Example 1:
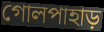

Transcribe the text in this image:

গোলপাহাড়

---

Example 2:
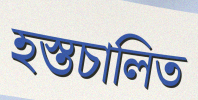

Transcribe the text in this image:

হস্তচালিত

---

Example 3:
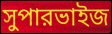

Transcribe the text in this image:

সুপারভাইজ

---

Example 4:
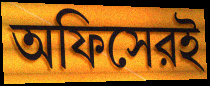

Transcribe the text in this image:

অফিসেরই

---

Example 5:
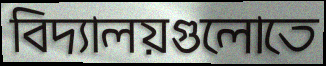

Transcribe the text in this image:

বিদ্যালয়গুলোতে